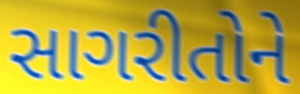
સાગરીતોને